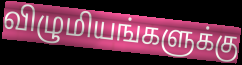
விழுமியங்களுக்கு